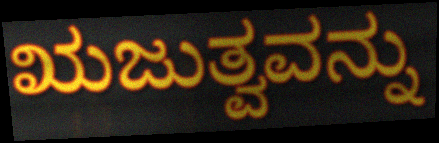
ಋಜುತ್ವವನ್ನು